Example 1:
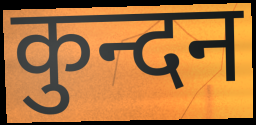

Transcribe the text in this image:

कुन्‍दन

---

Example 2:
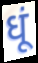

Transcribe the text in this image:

धूं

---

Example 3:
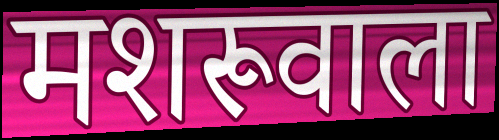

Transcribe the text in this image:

मशरूवाला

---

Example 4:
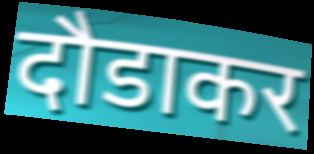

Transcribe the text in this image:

दौडाकर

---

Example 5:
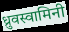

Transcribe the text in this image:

ध्रुवस्वामिनी